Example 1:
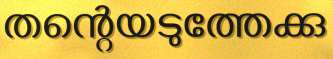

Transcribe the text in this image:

തന്റെയടുത്തേക്കു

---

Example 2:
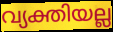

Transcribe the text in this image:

വ്യക്തിയല്ല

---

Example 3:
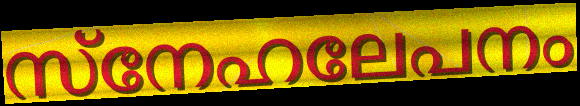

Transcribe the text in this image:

സ്നേഹലേപനം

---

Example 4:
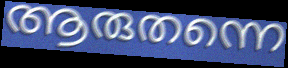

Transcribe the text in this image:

ആരുതന്നെ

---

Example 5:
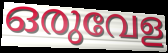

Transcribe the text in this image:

ഒരുവേള